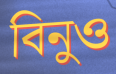
বিনুও